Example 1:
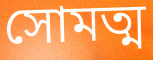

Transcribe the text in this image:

সোমত্ম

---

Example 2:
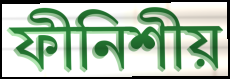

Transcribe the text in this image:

ফীনিশীয়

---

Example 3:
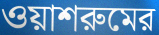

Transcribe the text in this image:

ওয়াশরুমের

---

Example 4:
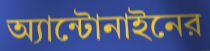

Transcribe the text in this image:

অ্যান্টোনাইনের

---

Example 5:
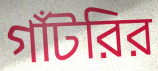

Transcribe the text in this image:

গাঁটরির